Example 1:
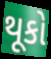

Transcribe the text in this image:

થૂકો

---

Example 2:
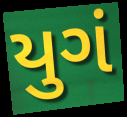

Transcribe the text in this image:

યુગં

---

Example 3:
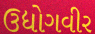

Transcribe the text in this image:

ઉદ્યોગવીર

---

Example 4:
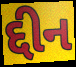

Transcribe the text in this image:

દ્દીન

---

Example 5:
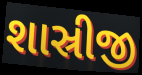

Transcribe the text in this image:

શાસ્રીજી